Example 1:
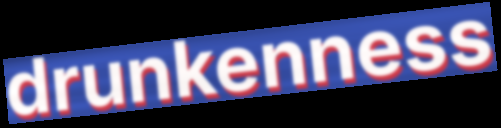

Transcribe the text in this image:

drunkenness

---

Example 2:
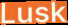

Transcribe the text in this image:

Lusk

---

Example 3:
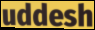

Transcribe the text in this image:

uddesh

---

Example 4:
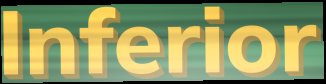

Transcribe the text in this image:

Inferior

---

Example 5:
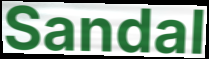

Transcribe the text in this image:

Sandal